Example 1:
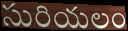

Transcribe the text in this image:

సురియలం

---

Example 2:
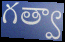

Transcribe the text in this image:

గత్వా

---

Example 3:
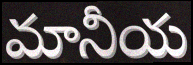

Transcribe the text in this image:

మానీయ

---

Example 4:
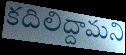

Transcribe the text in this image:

కదిలిద్దామని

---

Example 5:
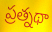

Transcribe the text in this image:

ప్రత్నథా